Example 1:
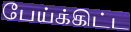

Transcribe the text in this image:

பேய்க்கிட்ட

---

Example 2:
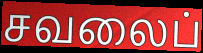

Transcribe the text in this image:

சவலைப்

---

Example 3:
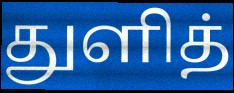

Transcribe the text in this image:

துளித்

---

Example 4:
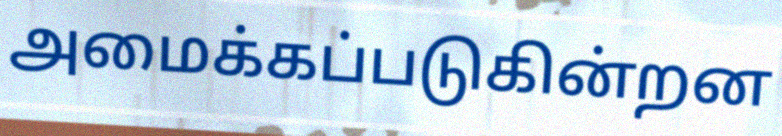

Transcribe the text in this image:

அமைக்கப்படுகின்றன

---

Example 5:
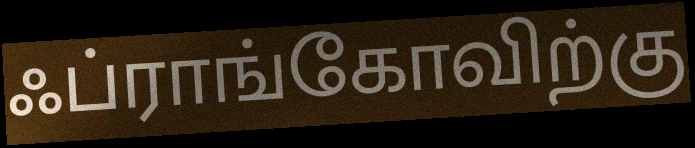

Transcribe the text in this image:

ஃப்ராங்கோவிற்கு